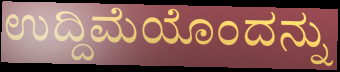
ಉದ್ದಿಮೆಯೊಂದನ್ನು